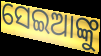
ସେଇଆଙ୍କୁ